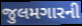
જુલમગારની